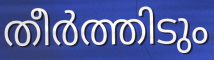
തീർത്തിടും